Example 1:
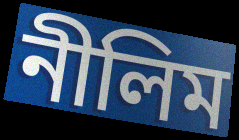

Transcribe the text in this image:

নীলিম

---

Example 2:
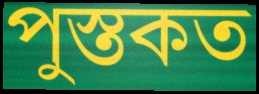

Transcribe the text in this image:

পুস্তকত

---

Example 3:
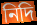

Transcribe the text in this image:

নিদি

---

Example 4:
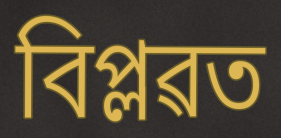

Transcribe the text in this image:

বিপ্লৱত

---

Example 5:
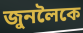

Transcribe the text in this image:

জুনলৈকে